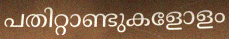
പതിറ്റാണ്ടുകളോളം